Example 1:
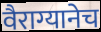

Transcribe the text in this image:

वैराग्यानेच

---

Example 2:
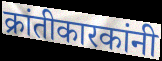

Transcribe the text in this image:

क्रांतीकारकांनी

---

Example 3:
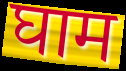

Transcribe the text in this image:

घाम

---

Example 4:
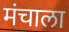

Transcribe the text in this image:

मंचाला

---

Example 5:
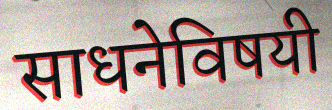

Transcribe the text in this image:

साधनेविषयी